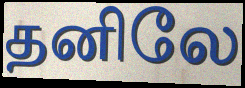
தனிலே